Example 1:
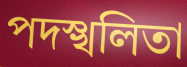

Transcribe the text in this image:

পদস্খলিতা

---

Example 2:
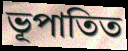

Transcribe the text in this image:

ভূপাতিত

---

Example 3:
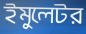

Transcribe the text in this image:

ইমুলেটর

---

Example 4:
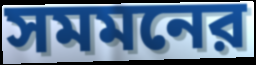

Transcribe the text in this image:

সমমনের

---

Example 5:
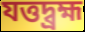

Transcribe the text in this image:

যত্তদ্ব্রহ্ম